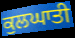
ਕੁਲਘਾਤੀ